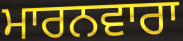
ਮਾਰਨਵਾਰਾ